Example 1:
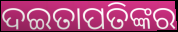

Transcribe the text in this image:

ଦଇତାପତିଙ୍କର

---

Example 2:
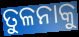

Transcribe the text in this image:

ତୁଳନାକୁ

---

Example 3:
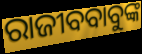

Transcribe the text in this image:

ରାଜୀବବାବୁଙ୍କ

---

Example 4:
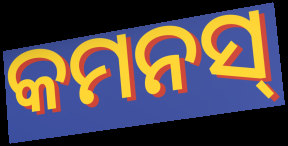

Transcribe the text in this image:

କମନସ୍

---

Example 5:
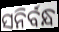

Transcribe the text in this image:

ସନିର୍ବନ୍ଧ